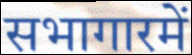
सभागारमें